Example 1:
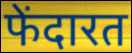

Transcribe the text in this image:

फेंदारत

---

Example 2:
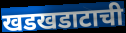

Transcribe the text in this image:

खडखडाटाची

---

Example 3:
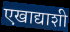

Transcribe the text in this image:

एखाद्याशी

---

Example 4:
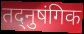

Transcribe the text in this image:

तद्नुषंगिक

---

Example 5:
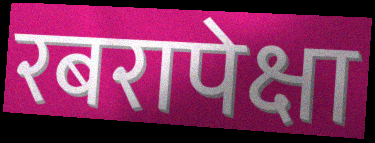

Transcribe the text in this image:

रबरापेक्षा